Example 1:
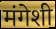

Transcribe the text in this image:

मंगेशी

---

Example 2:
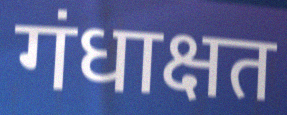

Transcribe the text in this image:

गंधाक्षत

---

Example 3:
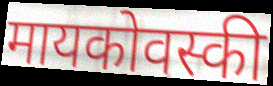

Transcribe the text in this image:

मायकोवस्की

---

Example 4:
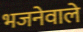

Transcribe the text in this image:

भजनेवाले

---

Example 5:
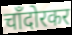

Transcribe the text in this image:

चाँदोरकर